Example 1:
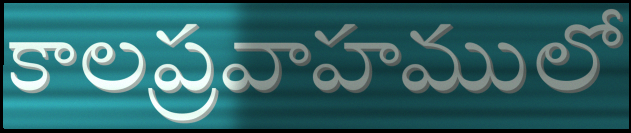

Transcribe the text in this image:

కాలప్రవాహములో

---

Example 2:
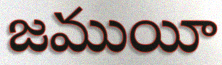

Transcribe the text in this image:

జముయీ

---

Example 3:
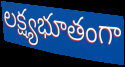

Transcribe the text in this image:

లక్ష్యభూతంగా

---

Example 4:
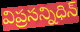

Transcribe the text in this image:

విప్రసన్నిధిన్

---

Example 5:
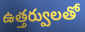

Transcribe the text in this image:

ఉత్తర్వులతో